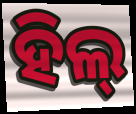
ହିଲ୍